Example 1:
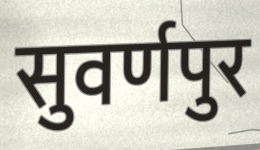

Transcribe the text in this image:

सुवर्णपुर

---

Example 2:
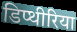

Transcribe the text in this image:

डिप्थीरिया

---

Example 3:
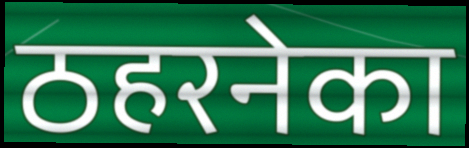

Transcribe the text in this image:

ठहरनेका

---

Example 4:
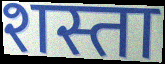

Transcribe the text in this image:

शस्ता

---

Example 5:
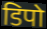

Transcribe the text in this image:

डिपो